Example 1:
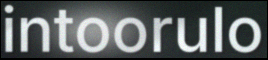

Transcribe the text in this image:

intoorulo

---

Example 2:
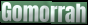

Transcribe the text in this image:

Gomorrah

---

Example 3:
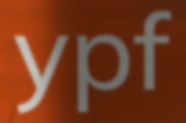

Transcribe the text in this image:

ypf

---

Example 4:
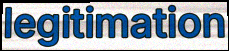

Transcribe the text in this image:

legitimation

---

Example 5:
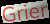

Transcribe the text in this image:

Grier